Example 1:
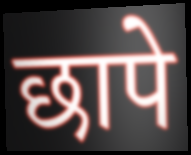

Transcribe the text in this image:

छापे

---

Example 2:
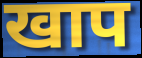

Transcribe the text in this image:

खाप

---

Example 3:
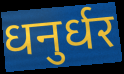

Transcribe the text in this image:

धनुर्धर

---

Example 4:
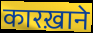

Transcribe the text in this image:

कारख़ाने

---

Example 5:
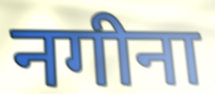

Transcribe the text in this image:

नगीना